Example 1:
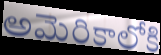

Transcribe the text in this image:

అమెరికాలోకి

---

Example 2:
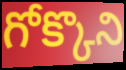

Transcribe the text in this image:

గోక్కొని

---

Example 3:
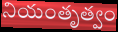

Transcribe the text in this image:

నియంతృత్వం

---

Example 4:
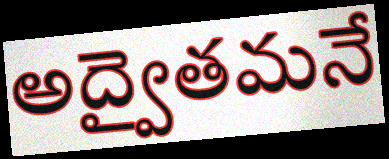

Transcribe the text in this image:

అద్వైతమనే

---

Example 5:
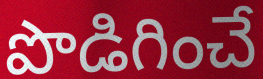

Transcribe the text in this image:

పొడిగించే